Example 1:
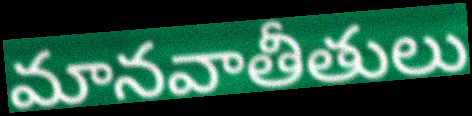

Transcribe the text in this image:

మానవాతీతులు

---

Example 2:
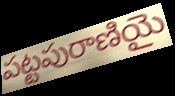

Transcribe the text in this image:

పట్టపురాణియై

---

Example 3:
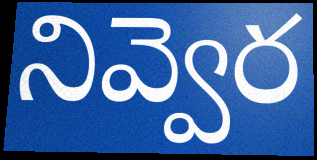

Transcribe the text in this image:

నివ్వెర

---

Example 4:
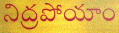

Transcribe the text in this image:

నిద్రపోయాం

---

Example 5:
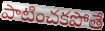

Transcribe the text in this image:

పాటించకపోతే